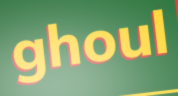
ghoul